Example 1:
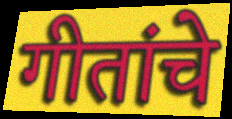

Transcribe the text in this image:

गीतांचे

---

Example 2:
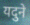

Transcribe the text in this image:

यदुने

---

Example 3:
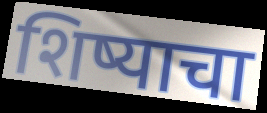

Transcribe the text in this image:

शिष्याचा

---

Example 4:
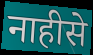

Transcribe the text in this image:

नाहीसे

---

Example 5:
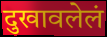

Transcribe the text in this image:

दुखावलेलं